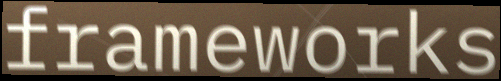
frameworks